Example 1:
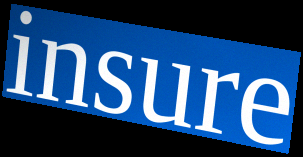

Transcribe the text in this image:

insure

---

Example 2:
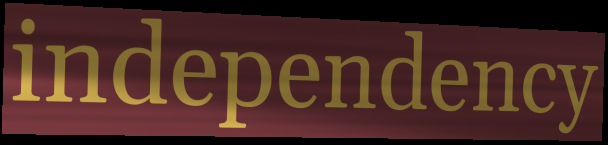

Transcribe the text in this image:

independency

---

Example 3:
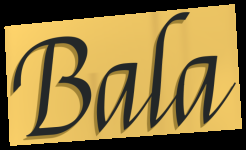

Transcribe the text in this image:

Bala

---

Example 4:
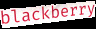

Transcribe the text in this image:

blackberry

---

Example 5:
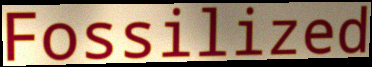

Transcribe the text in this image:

Fossilized